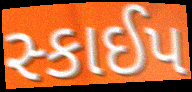
સ્કાઈપ